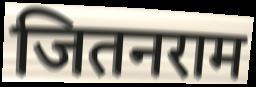
जितनराम